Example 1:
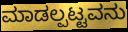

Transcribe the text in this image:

ಮಾಡಲ್ಪಟ್ಟವನು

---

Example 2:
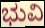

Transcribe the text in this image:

ಭುವಿ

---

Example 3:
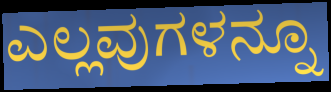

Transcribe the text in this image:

ಎಲ್ಲವುಗಳನ್ನೂ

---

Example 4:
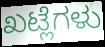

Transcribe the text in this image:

ಖಟ್ಲೆಗಳು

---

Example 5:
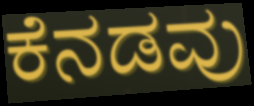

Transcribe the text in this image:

ಕೆನಡವು